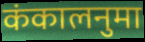
कंकालनुमा